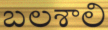
బలశాలి